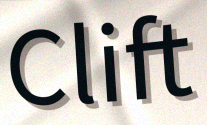
Clift